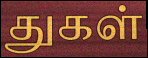
துகள்